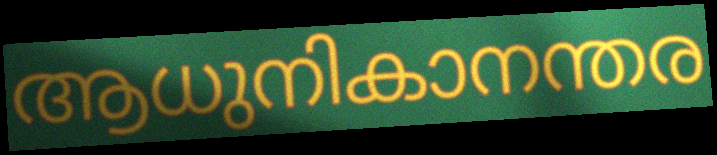
ആധുനികാനന്തര